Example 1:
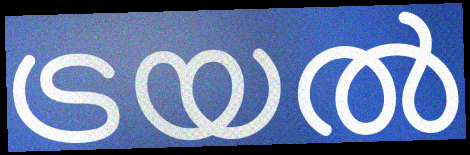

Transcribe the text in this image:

ട്രയൽ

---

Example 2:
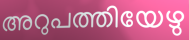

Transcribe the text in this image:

അറുപത്തിയേഴു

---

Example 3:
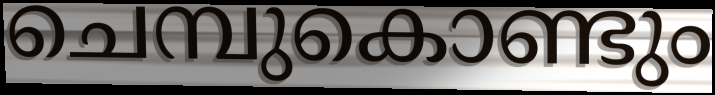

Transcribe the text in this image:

ചെമ്പുകൊണ്ടും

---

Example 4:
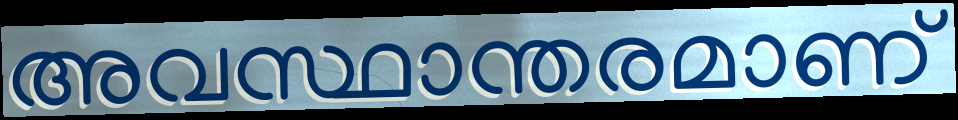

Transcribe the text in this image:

അവസ്ഥാന്തരമാണ്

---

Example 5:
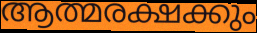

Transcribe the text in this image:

ആത്മരക്ഷക്കും